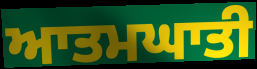
ਆਤਮਘਾਤੀ